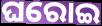
ଘରୋଇ